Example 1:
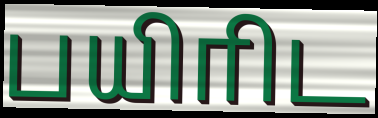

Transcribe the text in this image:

பயிரிட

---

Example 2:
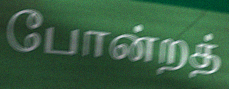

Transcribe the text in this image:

போன்றத்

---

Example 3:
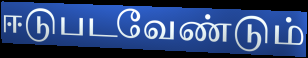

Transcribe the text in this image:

ஈடுபடவேண்டும்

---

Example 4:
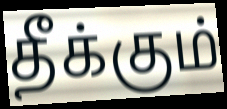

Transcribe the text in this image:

தீக்கும்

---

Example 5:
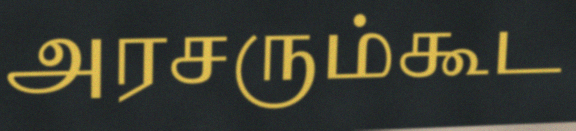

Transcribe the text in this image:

அரசரும்கூட